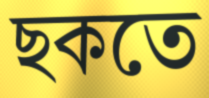
ছকতে